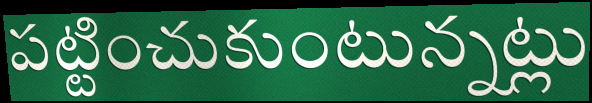
పట్టించుకుంటున్నట్లు